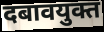
दबावयुक्त